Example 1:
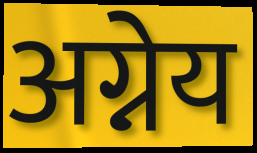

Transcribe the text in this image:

अग्नेय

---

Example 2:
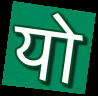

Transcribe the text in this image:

यो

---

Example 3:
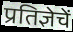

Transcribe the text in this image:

प्रतिज्ञेचें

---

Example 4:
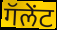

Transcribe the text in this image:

गॅलेंट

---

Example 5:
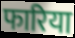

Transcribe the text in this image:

फारिया